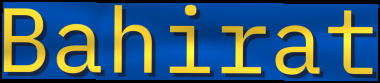
Bahirat